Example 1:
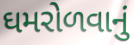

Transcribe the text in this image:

ઘમરોળવાનું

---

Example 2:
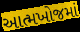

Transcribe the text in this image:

આત્મખોજમાં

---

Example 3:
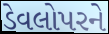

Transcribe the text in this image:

ડેવલોપરને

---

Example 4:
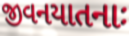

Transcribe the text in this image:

જીવનયાતનાઃ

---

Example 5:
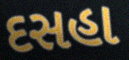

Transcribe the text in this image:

દસહા